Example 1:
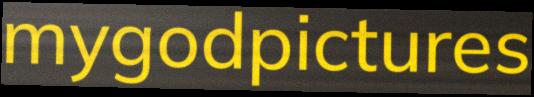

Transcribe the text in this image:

mygodpictures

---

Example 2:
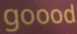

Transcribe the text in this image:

goood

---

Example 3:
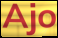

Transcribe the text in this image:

Ajo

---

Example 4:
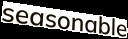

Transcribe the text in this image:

seasonable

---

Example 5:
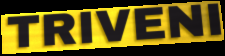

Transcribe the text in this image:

TRIVENI